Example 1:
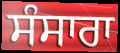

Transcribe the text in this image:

ਸੰਸਾਰਾ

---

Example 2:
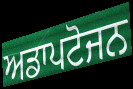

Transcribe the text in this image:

ਅਡਾਪਟੋਜਨ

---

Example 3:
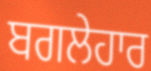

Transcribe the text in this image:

ਬਗਲੇਹਾਰ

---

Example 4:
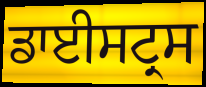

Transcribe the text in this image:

ਡਾਈਸਟ੍ਰਸ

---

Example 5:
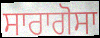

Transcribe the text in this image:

ਸਾਰਾਗੋਸਾ